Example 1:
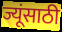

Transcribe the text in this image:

ज्यूंसाठी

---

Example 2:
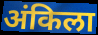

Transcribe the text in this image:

अंकिला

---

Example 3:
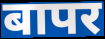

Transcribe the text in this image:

बापर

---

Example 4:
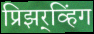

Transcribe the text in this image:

प्रिझर्व्हिंग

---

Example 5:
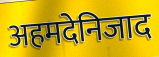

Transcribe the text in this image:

अहमदेनिजाद